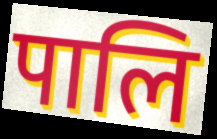
पालि